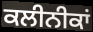
ਕਲੀਨੀਕਾਂ